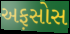
અફ઼સોસ